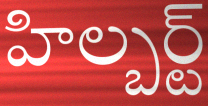
హిల్బర్ట్